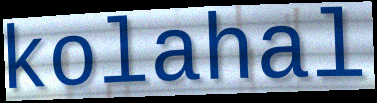
kolahal